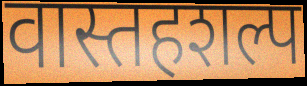
वास्तहशल्प